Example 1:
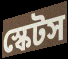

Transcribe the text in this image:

স্কেটস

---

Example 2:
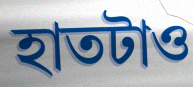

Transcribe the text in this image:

হাতটাও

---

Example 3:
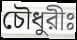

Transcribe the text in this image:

চৌধুরীঃ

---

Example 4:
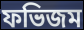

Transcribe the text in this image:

ফভিজম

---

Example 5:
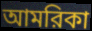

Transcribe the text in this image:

আমরিকা